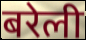
बरेली